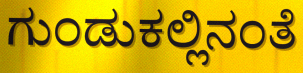
ಗುಂಡುಕಲ್ಲಿನಂತೆ